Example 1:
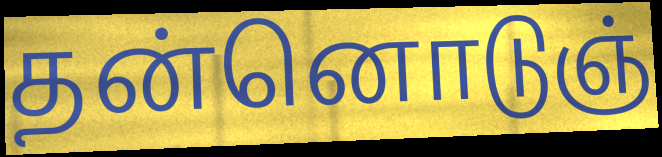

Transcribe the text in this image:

தன்னொடுஞ்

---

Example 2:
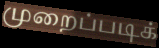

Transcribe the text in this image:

முறைப்படிக்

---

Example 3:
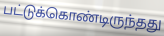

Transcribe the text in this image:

பட்டுக்கொண்டிருந்தது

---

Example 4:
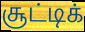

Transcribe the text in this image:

சூட்டிக்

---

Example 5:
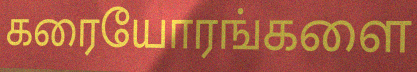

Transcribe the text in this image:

கரையோரங்களை